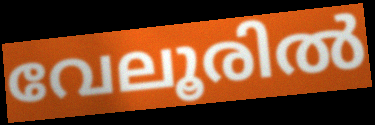
വേലൂരിൽ